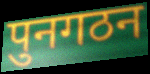
पुनगठन